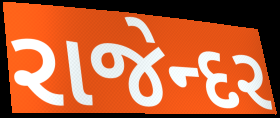
રાજેન્દર